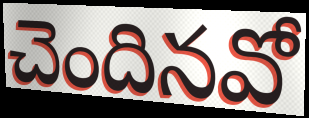
చెందినవో